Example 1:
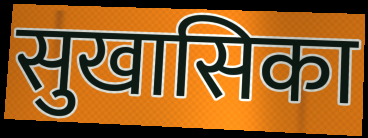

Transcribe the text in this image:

सुखासिका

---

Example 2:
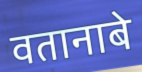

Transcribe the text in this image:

वतानाबे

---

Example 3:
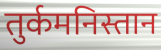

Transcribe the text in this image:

तुर्कमनिस्तान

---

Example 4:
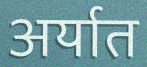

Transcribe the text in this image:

अर्यात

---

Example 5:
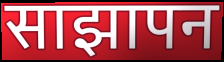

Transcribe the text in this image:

साझापन